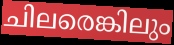
ചിലരെങ്കിലും